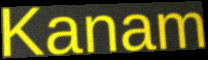
Kanam